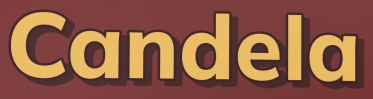
Candela